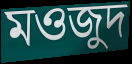
মওজুদ